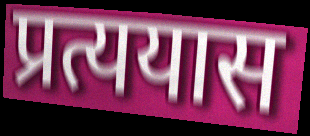
प्रत्ययास